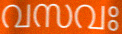
വസവഃ